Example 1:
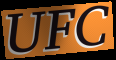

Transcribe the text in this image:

UFC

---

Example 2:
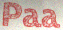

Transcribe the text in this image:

Paa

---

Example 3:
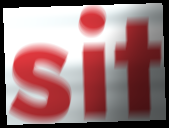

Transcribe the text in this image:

sit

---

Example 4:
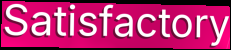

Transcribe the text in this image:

Satisfactory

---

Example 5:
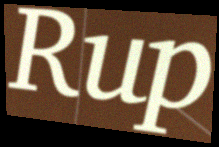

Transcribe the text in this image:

Rup